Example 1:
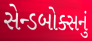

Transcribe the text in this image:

સેન્ડબોક્સનું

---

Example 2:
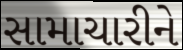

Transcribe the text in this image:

સામાચારીને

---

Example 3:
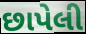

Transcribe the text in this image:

છાપેલી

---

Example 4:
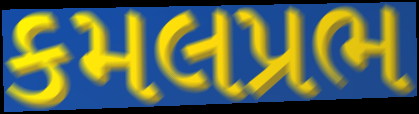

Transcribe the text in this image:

કમલપ્રભ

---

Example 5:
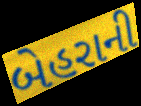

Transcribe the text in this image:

બેહરાની